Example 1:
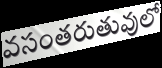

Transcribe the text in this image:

వసంతరుతువులో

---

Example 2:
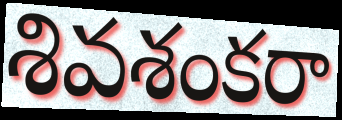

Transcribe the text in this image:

శివశంకరా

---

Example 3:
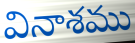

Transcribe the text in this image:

వినాశము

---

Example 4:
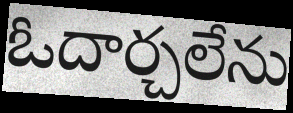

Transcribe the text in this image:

ఓదార్చలేను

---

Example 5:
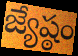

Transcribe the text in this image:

జ్యేష్ఠం